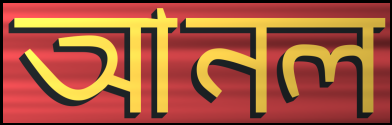
আনল